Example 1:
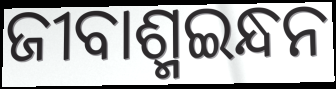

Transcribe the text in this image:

ଜୀବାଶ୍ମଇନ୍ଧନ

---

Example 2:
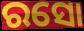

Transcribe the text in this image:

ରସୋ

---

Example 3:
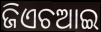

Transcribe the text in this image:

ଜିଏଚଆଇ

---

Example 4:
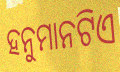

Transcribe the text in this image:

ହନୁମାନଟିଏ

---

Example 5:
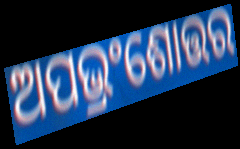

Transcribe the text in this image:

ଅପଭ୍ରଂଶୋତ୍ତର